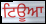
ਟਿਊਆ